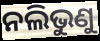
ନଲିଭୁଣୁ